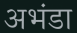
अभंडा